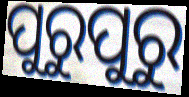
ପୁରୁପୁରୁ